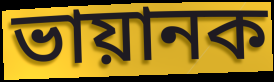
ভায়ানক